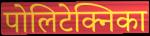
पोलिटेक्निका